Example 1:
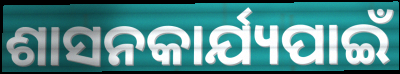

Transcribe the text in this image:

ଶାସନକାର୍ଯ୍ୟପାଇଁ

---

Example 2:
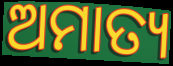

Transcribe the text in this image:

ଅମାତ୍ୟ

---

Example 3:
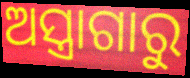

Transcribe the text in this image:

ଅସ୍ତ୍ରାଗାରୁ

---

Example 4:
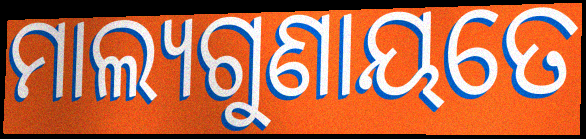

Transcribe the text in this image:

ମାଲ୍ୟଗୁଣାୟତେ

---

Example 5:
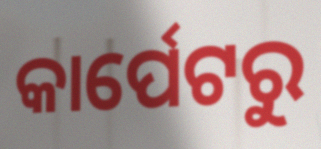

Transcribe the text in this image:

କାର୍ପେଟରୁ